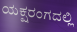
ಯಕ್ಷರಂಗದಲ್ಲಿ